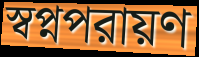
স্বপ্নপরায়ণ